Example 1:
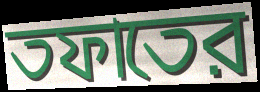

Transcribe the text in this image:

তফাতের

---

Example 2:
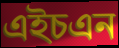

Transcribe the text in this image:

এইচএন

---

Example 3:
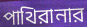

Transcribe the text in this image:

পাথিরানার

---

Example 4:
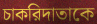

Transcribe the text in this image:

চাকরিদাতাকে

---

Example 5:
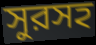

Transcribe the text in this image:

সুরসহ